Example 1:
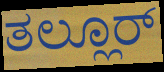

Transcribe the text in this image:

ತಲ್ಲೂರ್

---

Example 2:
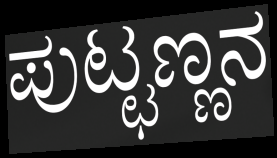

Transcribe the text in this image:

ಪುಟ್ಟಣ್ಣನ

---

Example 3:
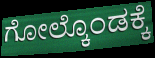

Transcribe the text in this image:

ಗೋಲ್ಕೊಂಡಕ್ಕೆ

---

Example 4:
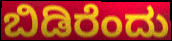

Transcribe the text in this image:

ಬಿಡಿರೆಂದು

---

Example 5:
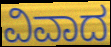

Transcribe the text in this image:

ವಿವಾದ